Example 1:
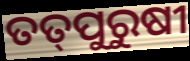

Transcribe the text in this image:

ତତ୍‌ପୁରୁଷୀ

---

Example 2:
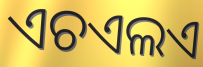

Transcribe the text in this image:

ଏଚଏଲଏ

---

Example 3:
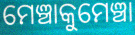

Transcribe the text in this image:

ମେଞ୍ଚାକୁମେଞ୍ଚା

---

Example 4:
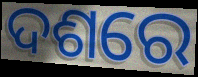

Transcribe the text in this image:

ଦଶରେ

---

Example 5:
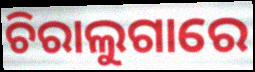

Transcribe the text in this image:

ଚିରାଲୁଗାରେ